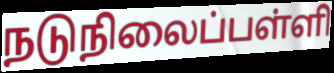
நடுநிலைப்பள்ளி